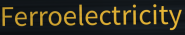
Ferroelectricity